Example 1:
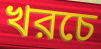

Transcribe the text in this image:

খরচে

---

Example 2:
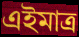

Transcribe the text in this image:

এইমাত্র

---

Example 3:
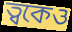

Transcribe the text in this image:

ত্বকেও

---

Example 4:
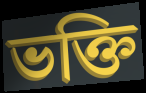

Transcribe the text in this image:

ভক্তি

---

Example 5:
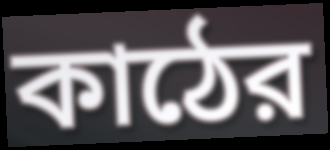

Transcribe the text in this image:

কাঠের